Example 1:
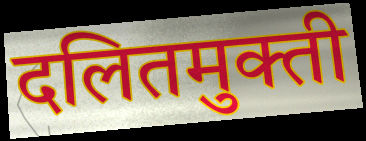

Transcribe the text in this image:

दलितमुक्ती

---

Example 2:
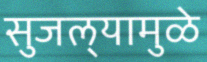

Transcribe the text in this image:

सुजल्यामुळे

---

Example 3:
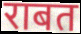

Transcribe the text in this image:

राबत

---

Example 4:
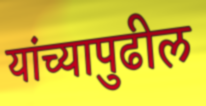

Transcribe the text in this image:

यांच्यापुढील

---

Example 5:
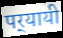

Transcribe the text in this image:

पर्यायी